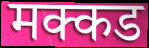
मक्कड